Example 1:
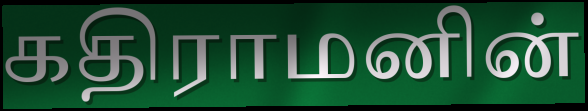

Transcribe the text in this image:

கதிராமனின்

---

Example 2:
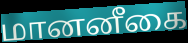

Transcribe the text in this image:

மானனீகை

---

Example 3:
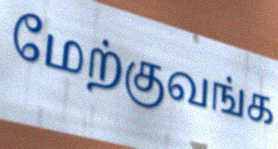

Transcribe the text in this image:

மேற்குவங்க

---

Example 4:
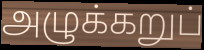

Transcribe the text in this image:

அழுக்கறுப்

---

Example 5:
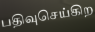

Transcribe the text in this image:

பதிவுசெய்கிற